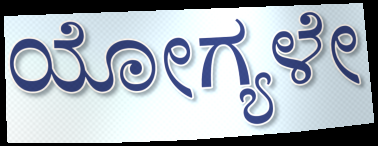
ಯೋಗ್ಯಳೇ